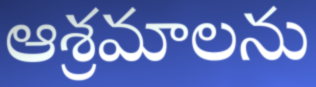
ఆశ్రమాలను